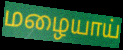
மழையாய்